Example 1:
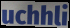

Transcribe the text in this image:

uchhli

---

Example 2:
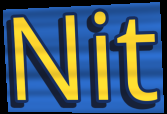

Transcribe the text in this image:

Nit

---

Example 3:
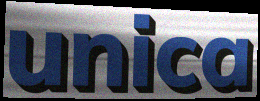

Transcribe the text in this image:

unica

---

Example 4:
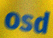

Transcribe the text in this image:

osd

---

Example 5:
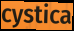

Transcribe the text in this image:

cystica